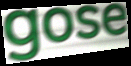
gose